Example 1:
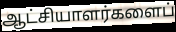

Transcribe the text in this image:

ஆட்சியாளர்களைப்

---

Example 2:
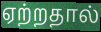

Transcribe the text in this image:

ஏற்றதால்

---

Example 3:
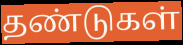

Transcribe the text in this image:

தண்டுகள்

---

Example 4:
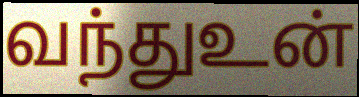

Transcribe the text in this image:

வந்துஉன்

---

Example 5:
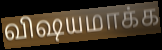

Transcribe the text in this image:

விஷயமாக்க